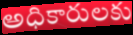
అధికారులకు